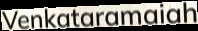
Venkataramaiah